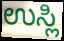
ಉಸ್ಲಿ